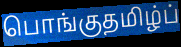
பொங்குதமிழ்ப்